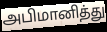
அபிமானித்து